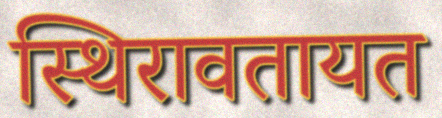
स्थिरावतायत